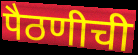
पैठणीची